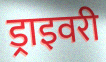
ड्राइवरी